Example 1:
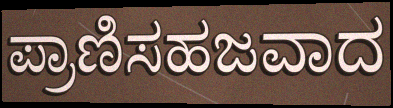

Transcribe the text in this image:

ಪ್ರಾಣಿಸಹಜವಾದ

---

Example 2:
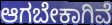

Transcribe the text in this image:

ಆಗಬೇಕಾಗಿವೆ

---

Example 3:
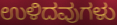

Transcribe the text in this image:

ಉಳಿದವುಗಳು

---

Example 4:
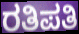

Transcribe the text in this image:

ರತಿಪತಿ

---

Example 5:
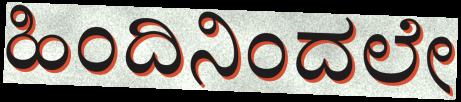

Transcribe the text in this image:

ಹಿಂದಿನಿಂದಲೇ